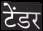
टेंडर